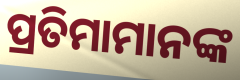
ପ୍ରତିମାମାନଙ୍କ